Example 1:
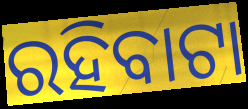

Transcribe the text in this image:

ରହିବାଟା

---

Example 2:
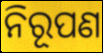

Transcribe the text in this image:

ନିରୂପଣ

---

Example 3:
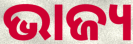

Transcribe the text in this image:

ଭାଜ୍ୟ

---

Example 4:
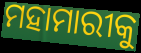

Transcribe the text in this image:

ମହାମାରୀକୁ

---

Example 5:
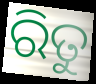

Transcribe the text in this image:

ରିତୁ